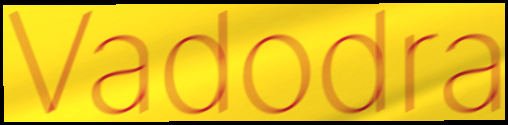
Vadodra